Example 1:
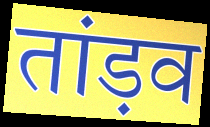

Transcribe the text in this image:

तांड़व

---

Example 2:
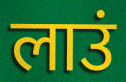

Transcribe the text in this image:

लाउं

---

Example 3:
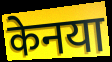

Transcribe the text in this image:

केनया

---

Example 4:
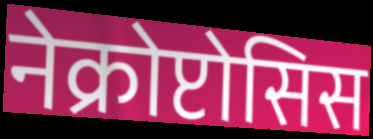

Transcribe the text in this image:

नेक्रोप्टोसिस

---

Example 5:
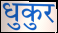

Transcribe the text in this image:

धुकुर